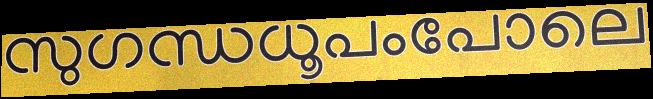
സുഗന്ധധൂപംപോലെ